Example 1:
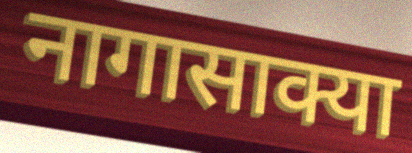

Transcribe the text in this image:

नागासाक्या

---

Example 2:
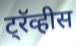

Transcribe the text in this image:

ट्रॅव्हीस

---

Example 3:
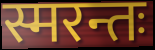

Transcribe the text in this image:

स्मरन्तः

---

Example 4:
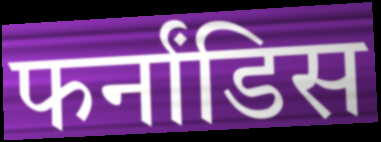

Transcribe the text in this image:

फर्नांडिस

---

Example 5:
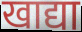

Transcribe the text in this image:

खाद्या